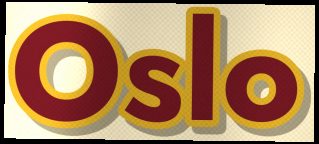
Oslo